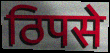
ठिपसे